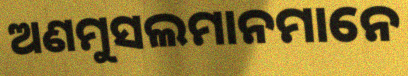
ଅଣମୁସଲମାନମାନେ